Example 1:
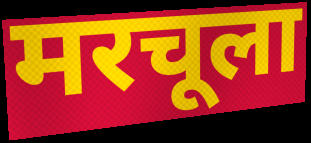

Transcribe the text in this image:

मरचूला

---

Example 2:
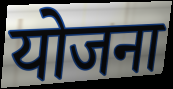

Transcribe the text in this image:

योजना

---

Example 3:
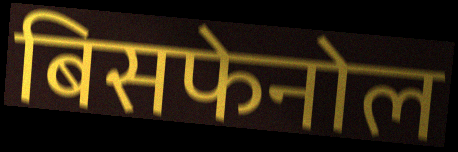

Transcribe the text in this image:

बिसफेनोल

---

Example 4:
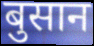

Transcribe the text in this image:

बुसान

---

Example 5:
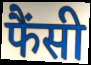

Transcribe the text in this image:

फैंसी